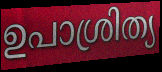
ഉപാശ്രിത്യ